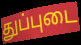
துப்புடை